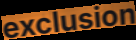
exclusion